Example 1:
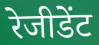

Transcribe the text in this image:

रेजीडेंट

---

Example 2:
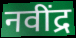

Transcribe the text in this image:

नवींद्र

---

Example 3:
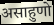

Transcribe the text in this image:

असाहुणो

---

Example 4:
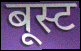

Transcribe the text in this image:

बूस्ट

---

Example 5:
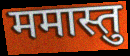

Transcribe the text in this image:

ममास्तु